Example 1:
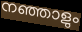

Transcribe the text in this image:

നഞ്ഞാളും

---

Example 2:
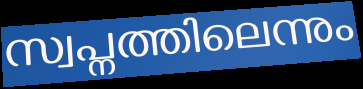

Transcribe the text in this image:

സ്വപ്നത്തിലെന്നും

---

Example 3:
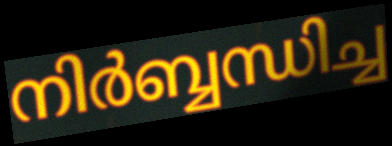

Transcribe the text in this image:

നിർബ്ബന്ധിച്ച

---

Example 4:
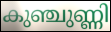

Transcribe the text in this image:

കുഞ്ചുണ്ണി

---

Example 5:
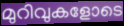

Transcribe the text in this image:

മുറിവുകളോടെ